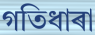
গতিধাৰা